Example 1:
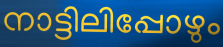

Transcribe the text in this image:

നാട്ടിലിപ്പോഴും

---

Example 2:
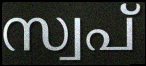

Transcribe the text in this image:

സ്വപ്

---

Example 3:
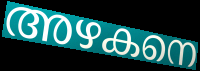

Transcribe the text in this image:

അഴകനെ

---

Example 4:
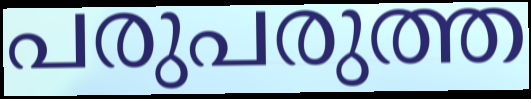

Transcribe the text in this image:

പരുപരുത്ത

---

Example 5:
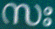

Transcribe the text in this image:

സഃ